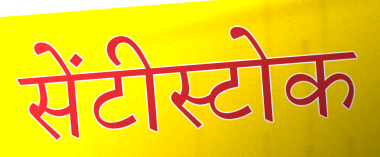
सेंटीस्टोक